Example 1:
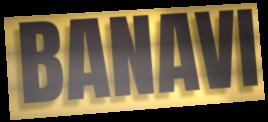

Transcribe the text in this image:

BANAVI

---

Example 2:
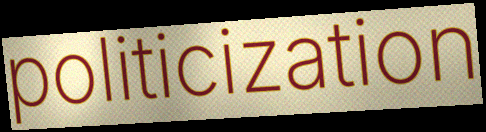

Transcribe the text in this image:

politicization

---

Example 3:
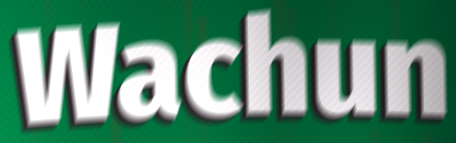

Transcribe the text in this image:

Wachun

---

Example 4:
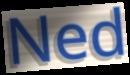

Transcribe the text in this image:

Ned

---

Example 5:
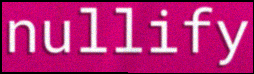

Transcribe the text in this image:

nullify